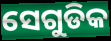
ସେଗୁଡିକ